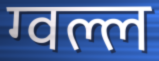
ग्वल्ल